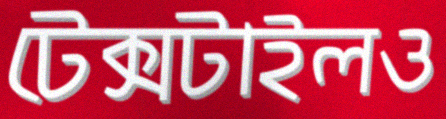
টেক্সটাইলও